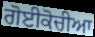
ਗੋਈਕੋਚੀਆ